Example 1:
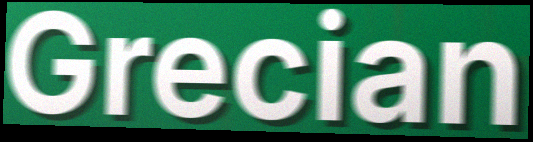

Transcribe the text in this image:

Grecian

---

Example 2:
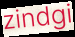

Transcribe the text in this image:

zindgi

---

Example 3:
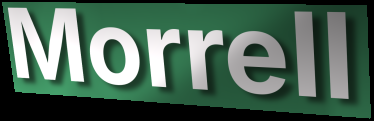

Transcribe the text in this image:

Morrell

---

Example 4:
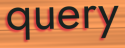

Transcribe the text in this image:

query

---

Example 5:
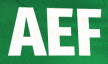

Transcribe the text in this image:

AEF